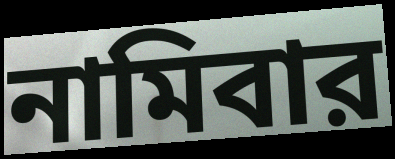
নামিবার